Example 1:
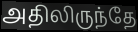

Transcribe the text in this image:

அதிலிருந்தே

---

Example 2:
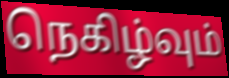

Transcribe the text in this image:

நெகிழ்வும்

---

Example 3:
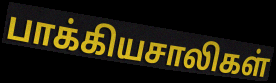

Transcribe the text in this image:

பாக்கியசாலிகள்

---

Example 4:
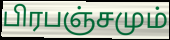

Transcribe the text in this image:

பிரபஞ்சமும்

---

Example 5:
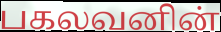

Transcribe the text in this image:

பகலவனின்